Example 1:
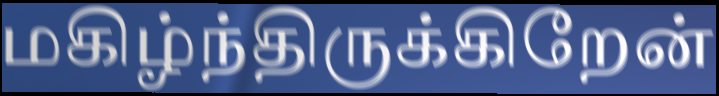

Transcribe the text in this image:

மகிழ்ந்திருக்கிறேன்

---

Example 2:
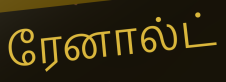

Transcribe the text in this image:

ரேனால்ட்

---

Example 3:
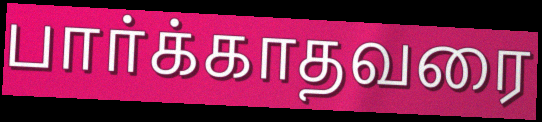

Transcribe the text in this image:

பார்க்காதவரை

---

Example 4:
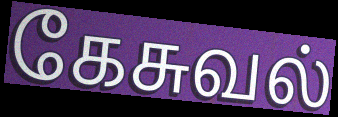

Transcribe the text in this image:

கேசுவல்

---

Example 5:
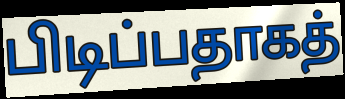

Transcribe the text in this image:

பிடிப்பதாகத்